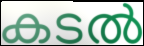
കടൽ